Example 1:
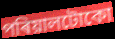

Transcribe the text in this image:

পৰিয়ালটোকো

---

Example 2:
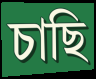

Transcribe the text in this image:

চাছি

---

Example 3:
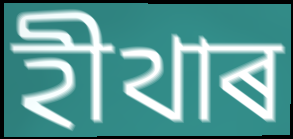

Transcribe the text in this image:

হীথাৰ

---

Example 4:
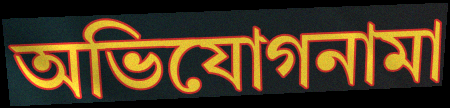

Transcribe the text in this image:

অভিযোগনামা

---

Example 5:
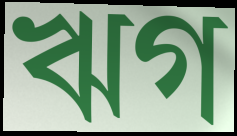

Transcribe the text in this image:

ঋগ